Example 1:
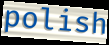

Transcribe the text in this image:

polish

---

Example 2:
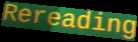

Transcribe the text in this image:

Rereading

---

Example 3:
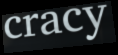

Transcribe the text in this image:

cracy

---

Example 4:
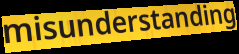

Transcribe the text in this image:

misunderstanding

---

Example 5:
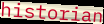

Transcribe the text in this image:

historian